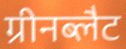
ग्रीनब्लैट